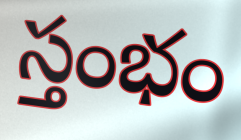
స్తంభం